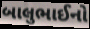
બાલુભાઈનો